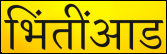
भिंतींआड